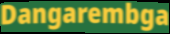
Dangarembga